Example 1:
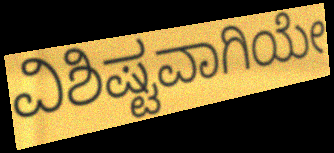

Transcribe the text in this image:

ವಿಶಿಷ್ಟವಾಗಿಯೇ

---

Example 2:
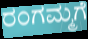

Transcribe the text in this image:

ರಂಗಮ್ಮಗೆ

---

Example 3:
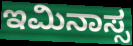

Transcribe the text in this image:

ಇಮಿನಾಸ್ಸ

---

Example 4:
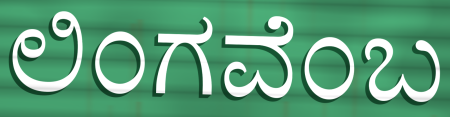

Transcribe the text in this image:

ಲಿಂಗವೆಂಬ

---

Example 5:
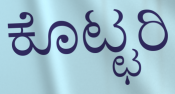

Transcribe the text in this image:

ಕೊಟ್ಟರಿ